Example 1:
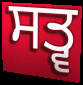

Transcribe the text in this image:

ਸਤ੍ਵ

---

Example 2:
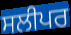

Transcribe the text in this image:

ਸਲੀਪਰ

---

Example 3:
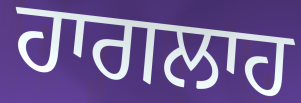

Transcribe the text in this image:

ਹਾਗਲਾਹ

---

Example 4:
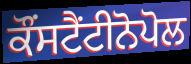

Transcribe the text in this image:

ਕੌਂਸਟੈਂਟੀਨੋਪੋਲ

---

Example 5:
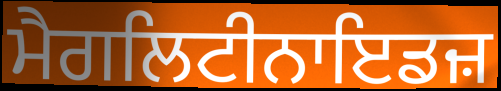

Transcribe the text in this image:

ਮੈਗਲਿਟੀਨਾਇਡਜ਼